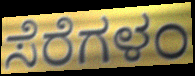
ಸೆರೆಗಳಂ